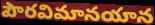
పౌరవిమానయాన